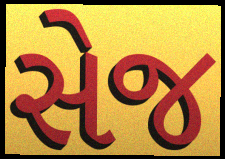
સેજ